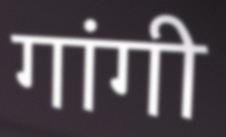
गांगी